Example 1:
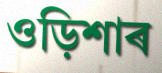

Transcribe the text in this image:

ওড়িশাৰ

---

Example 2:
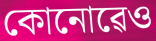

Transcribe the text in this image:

কোনোৱেও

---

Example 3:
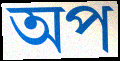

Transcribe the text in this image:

অপ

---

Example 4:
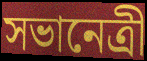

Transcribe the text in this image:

সভানেত্ৰী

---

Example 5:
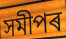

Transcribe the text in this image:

সমীপৰ